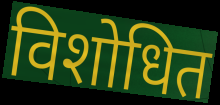
विशोधित